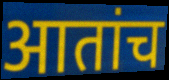
आतांच